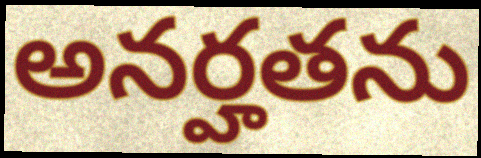
అనర్హతను